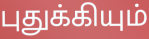
புதுக்கியும்